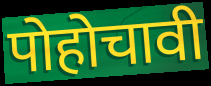
पोहोचावी